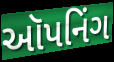
ઑપનિંગ